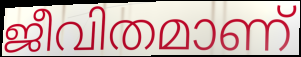
ജീവിതമാണ്